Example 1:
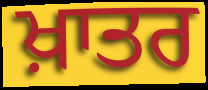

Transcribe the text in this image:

ਖ਼ਾਤਰ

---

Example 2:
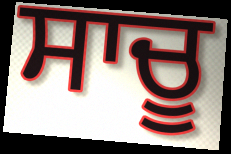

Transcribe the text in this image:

ਸਾਚੂ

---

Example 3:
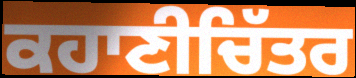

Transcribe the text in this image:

ਕਹਾਣੀਚਿੱਤਰ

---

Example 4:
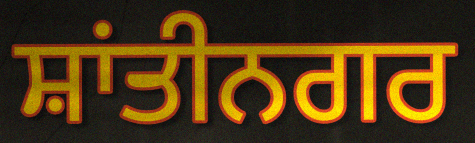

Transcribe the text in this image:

ਸ਼ਾਂਤੀਨਗਰ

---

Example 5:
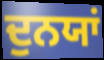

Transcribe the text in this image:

ਦੁਨਯਾਂ